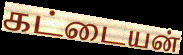
கட்டையன்